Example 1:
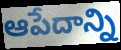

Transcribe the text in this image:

ఆపేదాన్ని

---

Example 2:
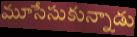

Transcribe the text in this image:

మూసేసుకున్నాడు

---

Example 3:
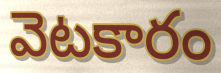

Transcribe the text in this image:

వెటకారం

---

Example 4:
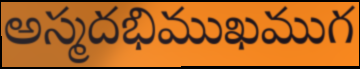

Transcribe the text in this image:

అస్మదభిముఖముగ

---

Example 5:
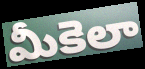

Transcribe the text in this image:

మీకెలా